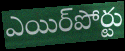
ఎయిర్‌పోర్టు